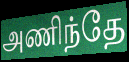
அணிந்தே